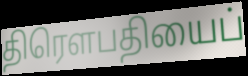
திரெளபதியைப்